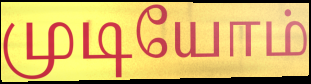
முடியோம்